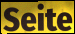
Seite